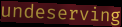
undeserving